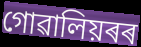
গোৱালিয়ৰৰ